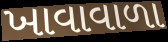
ખાવાવાળા